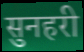
सुनहरी